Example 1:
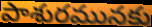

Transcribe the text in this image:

పాశురమునకు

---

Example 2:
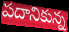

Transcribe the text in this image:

పదానికున్న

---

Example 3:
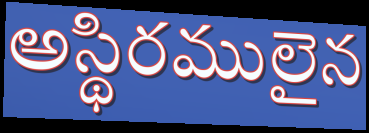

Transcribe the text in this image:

అస్థిరములైన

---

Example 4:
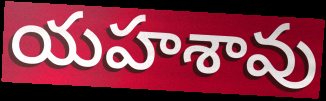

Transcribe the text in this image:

యహశావు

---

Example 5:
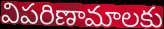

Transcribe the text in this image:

విపరిణామాలకు